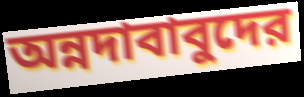
অন্নদাবাবুদের